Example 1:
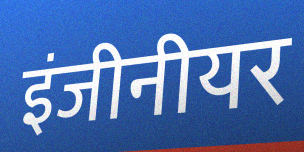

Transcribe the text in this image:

इंजीनीयर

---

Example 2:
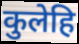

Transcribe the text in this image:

कुलेहि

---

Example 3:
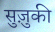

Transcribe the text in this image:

सुज़ुकी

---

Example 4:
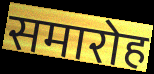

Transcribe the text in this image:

समारोह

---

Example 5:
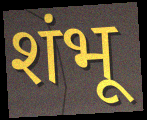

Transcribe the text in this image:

शंभू